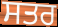
ਸਤਰ